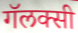
गॅलक्सी